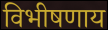
विभीषणाय